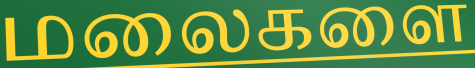
மலைகளை